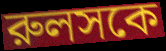
রুলসকে